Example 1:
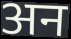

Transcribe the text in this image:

अन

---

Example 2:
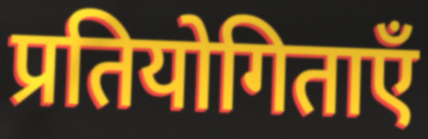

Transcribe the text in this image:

प्रतियोगिताएँ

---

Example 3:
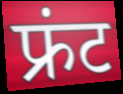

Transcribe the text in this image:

फ्रंट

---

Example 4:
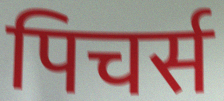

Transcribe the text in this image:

पिचर्स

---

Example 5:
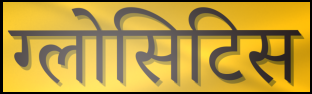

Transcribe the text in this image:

ग्लोसिटिस